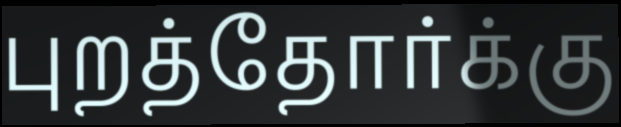
புறத்தோர்க்கு